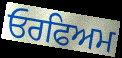
ਓਰਫਿਅਮ